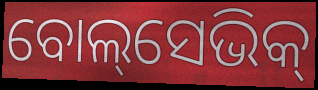
ବୋଲ୍‌ସେଭିକ୍